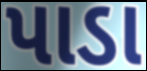
પાડા